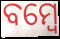
ବମ୍ୱେ